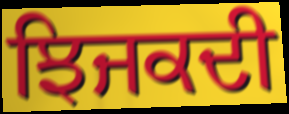
ਝਿਜਕਦੀ